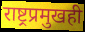
राष्ट्रप्रमुखही